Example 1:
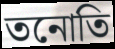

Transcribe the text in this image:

তনোতি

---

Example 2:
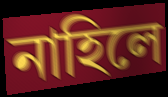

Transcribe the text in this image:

নাহিলে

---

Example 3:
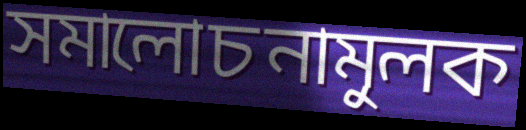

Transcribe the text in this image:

সমালোচনামুলক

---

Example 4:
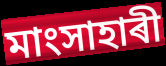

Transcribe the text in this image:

মাংসাহাৰী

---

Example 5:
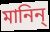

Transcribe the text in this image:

মানিন্